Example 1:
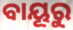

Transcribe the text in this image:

ବାୟୂରୁ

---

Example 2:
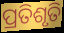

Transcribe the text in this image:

ପ୍ରତିଶୃତି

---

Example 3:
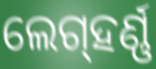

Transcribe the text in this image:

ଲେଗ୍‌ହର୍ଣ୍ଣ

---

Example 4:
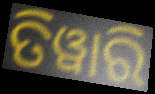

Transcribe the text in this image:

ତିୱାରି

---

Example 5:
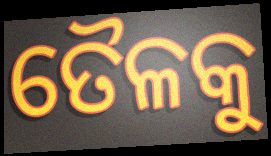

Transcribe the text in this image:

ତୈଳକୁ